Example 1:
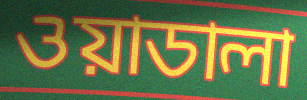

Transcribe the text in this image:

ওয়াডালা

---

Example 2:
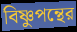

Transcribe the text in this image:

বিষ্ণুপন্থের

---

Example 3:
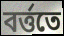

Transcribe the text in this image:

বর্ত্ততে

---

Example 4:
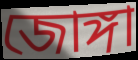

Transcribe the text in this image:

জোঙ্গা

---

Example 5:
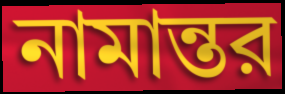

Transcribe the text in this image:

নামান্তর